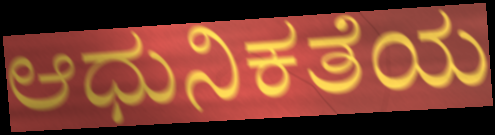
ಆಧುನಿಕತೆಯ